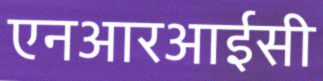
एनआरआईसी